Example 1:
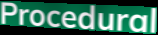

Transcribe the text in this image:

Procedural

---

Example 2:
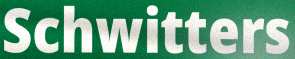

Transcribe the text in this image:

Schwitters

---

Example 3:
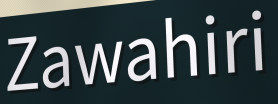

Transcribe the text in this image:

Zawahiri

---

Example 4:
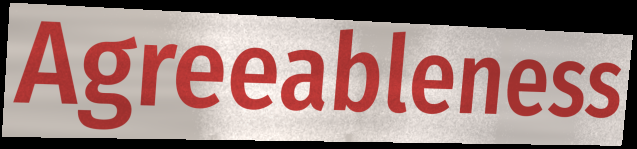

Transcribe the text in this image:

Agreeableness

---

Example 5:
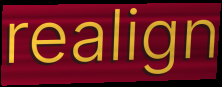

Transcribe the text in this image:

realign